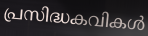
പ്രസിദ്ധകവികൾ